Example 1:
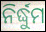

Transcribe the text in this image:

ନିର୍ଦ୍ଧୁମ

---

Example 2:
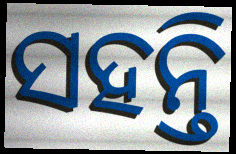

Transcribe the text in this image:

ସହନ୍ତି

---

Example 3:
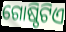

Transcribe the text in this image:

ଗୋଷ୍ଠିଟିଏ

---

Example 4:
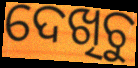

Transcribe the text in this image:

ଦେଖିଚୁ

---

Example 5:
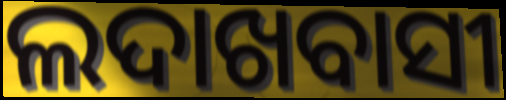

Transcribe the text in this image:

ଲଦାଖବାସୀ